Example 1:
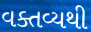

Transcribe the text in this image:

વક્તવ્યથી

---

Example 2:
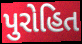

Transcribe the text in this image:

પુરોહિત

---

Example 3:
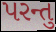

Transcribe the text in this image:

પરન્તુ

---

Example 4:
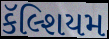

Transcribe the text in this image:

કૅલ્શિયમ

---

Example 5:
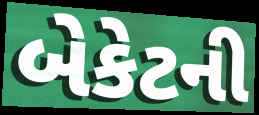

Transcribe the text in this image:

બેકેટની